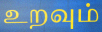
உறவும்